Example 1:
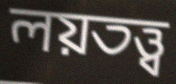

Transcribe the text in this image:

লয়তত্ত্ব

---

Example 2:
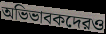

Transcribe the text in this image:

অভিভাবকদেরও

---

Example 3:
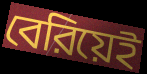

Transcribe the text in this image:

বেরিয়েই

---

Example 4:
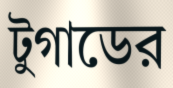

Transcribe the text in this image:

টুগাডের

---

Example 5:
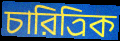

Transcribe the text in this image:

চারিত্রিক